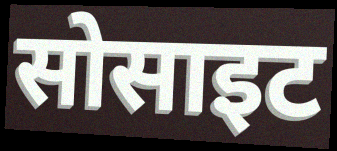
सोसाइट